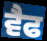
ਵੈਫ